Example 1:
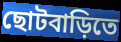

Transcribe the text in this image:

ছোটবাড়িতে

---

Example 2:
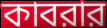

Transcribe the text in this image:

কাবরার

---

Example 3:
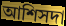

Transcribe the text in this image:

আশিসদা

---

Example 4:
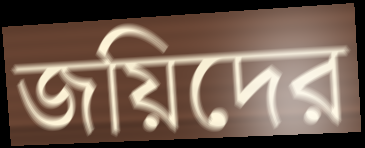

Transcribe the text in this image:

জয়িদের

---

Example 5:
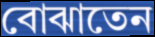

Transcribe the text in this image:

বোঝাতেন